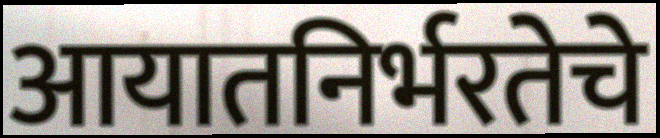
आयातनिर्भरतेचे